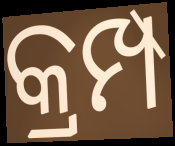
କ୍ରମ୍ପ